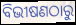
ବିଭୀଷଣଠାରୁ